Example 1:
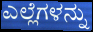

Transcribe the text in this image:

ಎಲ್ಲೆಗಳನ್ನು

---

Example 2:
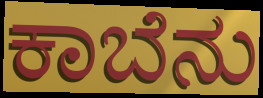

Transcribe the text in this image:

ಕಾಬೆನು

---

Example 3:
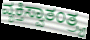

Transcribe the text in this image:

ವ್ಯಕ್ತಿಸ್ವಾತಂತ್ರ್ಯ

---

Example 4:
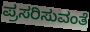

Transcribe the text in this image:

ಪ್ರಸರಿಸುವಂತೆ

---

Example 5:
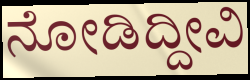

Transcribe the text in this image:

ನೋಡಿದ್ದೀವಿ